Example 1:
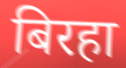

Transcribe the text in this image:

बिरहा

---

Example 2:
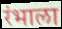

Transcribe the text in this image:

रंभाला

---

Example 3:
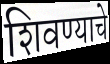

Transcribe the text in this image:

शिवण्याचे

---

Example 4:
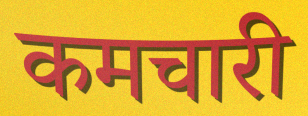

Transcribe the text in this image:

कमचारी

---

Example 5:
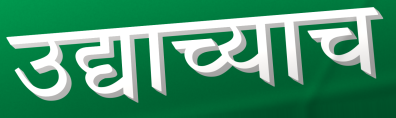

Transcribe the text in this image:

उद्याच्याच